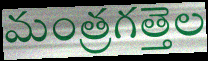
మంత్రగత్తెల